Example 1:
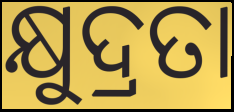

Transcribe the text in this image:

କ୍ଷୁଦ୍ରତା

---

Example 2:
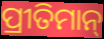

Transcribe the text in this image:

ପ୍ରୀତିମାନ୍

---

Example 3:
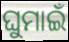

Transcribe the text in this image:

ଘୁମାଇଁ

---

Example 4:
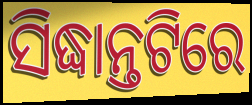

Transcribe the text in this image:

ସିଦ୍ଧାନ୍ତଟିରେ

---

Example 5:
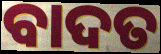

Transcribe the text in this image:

ବାଦତ